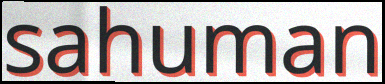
sahuman